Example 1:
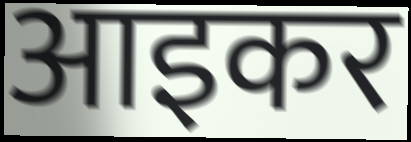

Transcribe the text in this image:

आइकर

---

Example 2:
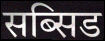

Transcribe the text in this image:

सब्सिड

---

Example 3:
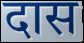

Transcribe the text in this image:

दास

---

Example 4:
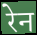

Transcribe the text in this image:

रेन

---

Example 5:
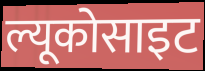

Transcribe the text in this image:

ल्यूकोसाइट